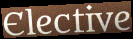
Elective